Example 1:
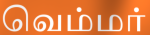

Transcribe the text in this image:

வெம்மர்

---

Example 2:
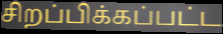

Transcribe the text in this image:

சிறப்பிக்கப்பட்ட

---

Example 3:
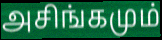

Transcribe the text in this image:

அசிங்கமும்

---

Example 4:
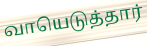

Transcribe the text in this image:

வாயெடுத்தார்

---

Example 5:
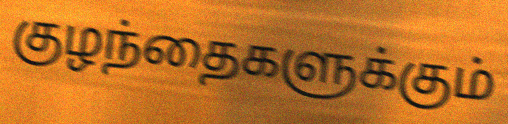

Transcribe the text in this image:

குழந்தைகளுக்கும்